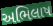
અભિલાષ